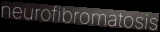
neurofibromatosis